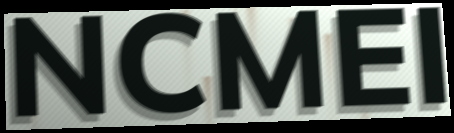
NCMEI